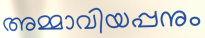
അമ്മാവിയപ്പനും